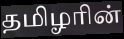
தமிழரின்